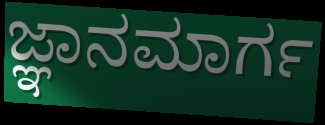
ಜ್ಞಾನಮಾರ್ಗ